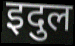
इदुल